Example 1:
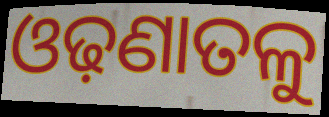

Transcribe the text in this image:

ଓଢ଼ଣାତଳୁ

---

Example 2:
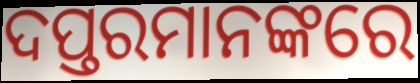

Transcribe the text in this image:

ଦପ୍ତରମାନଙ୍କରେ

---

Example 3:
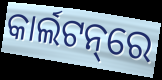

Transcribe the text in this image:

କାର୍ଲଟନ୍‌ରେ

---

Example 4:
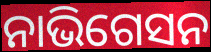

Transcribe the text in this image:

ନାଭିଗେସନ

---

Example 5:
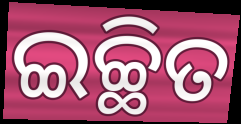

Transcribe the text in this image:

ଇଚ୍ଛିତ